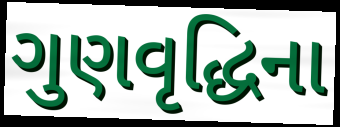
ગુણવૃદ્ધિના